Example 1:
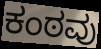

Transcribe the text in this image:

ಕಂಠವು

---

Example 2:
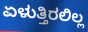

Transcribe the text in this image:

ಏಳುತ್ತಿರಲಿಲ್ಲ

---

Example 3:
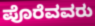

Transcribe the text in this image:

ಪೊರೆವವರು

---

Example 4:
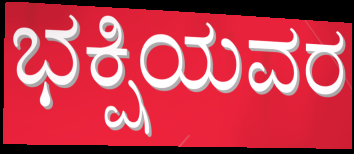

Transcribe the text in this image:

ಭಕ್ಷಿಯವರ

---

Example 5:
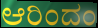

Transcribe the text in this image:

ಆರಿಂದಂ